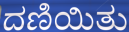
ದಣಿಯಿತು